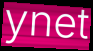
ynet